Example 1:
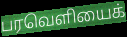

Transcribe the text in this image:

பரவெளியைக்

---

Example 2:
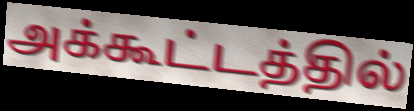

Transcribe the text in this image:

அக்கூட்டத்தில்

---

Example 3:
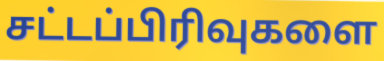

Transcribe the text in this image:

சட்டப்பிரிவுகளை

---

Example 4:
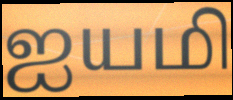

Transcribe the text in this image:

ஐயமி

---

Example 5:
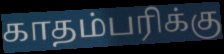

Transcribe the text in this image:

காதம்பரிக்கு